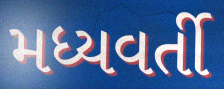
મધ્યવર્તી